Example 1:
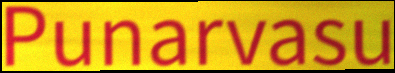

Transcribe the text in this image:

Punarvasu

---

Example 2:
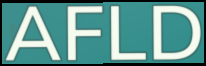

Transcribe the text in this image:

AFLD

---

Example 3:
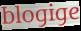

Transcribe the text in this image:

blogige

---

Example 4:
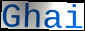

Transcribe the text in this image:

Ghai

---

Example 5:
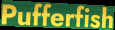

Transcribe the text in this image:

Pufferfish